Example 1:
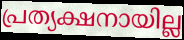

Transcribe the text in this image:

പ്രത്യക്ഷനായില്ല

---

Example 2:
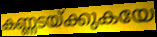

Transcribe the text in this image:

കണ്ണടയ്ക്കുകയേ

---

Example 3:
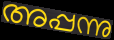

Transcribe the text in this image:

അപ്പന്നു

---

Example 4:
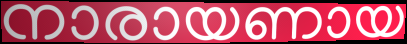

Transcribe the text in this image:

നാരായണായ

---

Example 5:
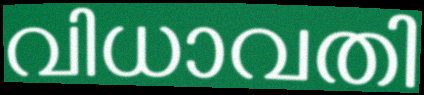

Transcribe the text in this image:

വിധാവതി